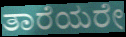
ತಾರೆಯರೇ